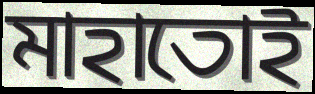
মাহাতোই